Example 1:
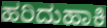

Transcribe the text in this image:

ಹರಿದುಹಾಕಿ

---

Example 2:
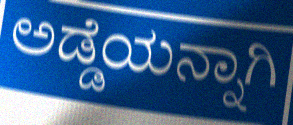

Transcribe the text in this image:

ಅಡ್ಡೆಯನ್ನಾಗಿ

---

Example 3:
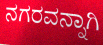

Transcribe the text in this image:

ನಗರವನ್ನಾಗಿ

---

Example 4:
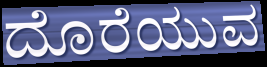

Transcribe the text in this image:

ದೊರೆಯುವ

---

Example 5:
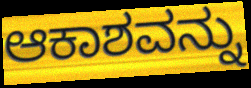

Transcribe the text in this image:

ಆಕಾಶವನ್ನು